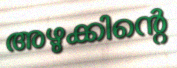
അഴുക്കിന്റെ